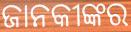
ଜାନକୀଙ୍କର